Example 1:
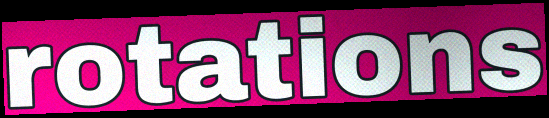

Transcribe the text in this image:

rotations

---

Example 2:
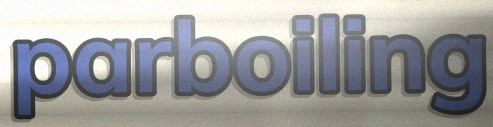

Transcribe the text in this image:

parboiling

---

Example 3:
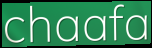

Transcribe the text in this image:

chaafa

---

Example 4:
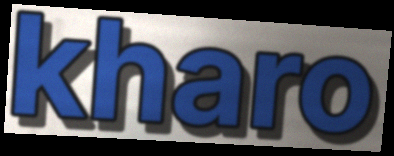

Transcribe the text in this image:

kharo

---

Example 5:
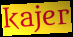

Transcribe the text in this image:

kajer